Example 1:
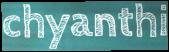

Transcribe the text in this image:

chyanthi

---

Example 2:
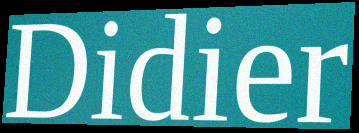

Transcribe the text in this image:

Didier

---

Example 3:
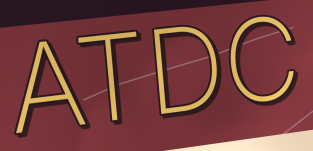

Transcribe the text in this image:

ATDC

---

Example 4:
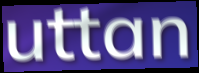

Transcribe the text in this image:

uttan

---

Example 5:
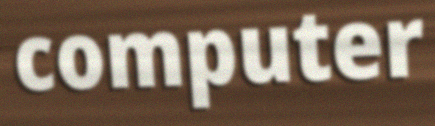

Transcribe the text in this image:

computer